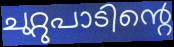
ചുറ്റുപാടിന്റെ